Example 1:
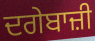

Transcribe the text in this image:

ਦਗੇਬਾਜ਼ੀ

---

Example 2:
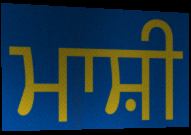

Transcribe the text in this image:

ਮਾਸ਼ੀ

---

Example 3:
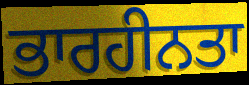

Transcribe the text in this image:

ਭਾਰਹੀਨਤਾ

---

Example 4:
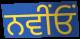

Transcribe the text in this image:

ਨਵੀਂਓਂ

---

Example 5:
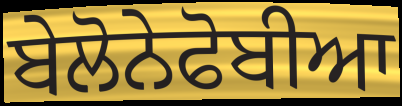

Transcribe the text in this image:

ਬੇਲੋਨੇਫੋਬੀਆ